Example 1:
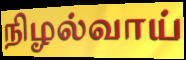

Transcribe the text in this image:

நிழல்வாய்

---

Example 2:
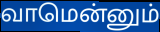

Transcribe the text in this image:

வாமென்னும்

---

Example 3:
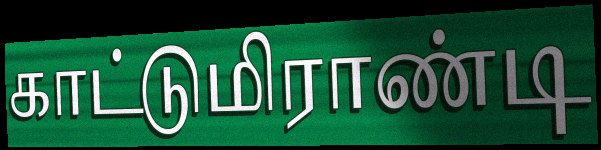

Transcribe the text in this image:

காட்டுமிராண்டி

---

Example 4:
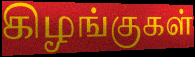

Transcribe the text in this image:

கிழங்குகள்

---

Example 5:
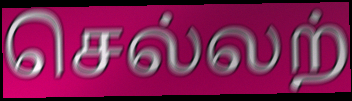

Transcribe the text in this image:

செல்லற்